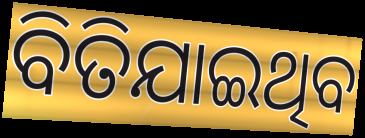
ବିତିଯାଇଥିବ